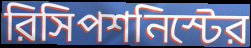
রিসিপশনিস্টের